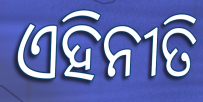
ଏହିନୀତି